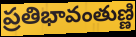
ప్రతిభావంతుణ్ణి